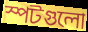
স্পটগুলো